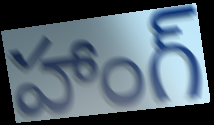
హాంగ్